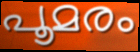
പൂമരം